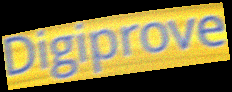
Digiprove